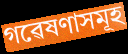
গৱেষণাসমূহ